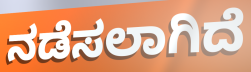
ನಡೆಸಲಾಗಿದೆ